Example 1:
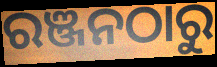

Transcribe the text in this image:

ରଞ୍ଜନଠାରୁ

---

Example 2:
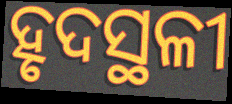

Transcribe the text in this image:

ହୃଦସ୍ଥଳୀ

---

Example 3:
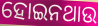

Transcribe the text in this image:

ହୋଇନଥାଉ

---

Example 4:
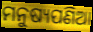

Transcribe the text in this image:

ମନୁଷ୍ୟପଣିଆ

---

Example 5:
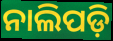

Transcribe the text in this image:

ନାଲିପଡ଼ି